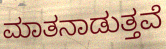
ಮಾತನಾಡುತ್ತವೆ